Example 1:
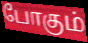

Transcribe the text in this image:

போகும்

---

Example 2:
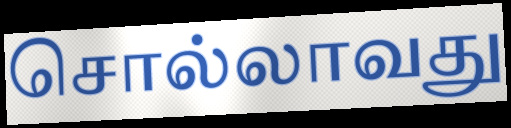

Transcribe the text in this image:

சொல்லாவது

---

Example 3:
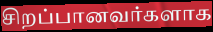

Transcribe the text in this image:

சிறப்பானவர்களாக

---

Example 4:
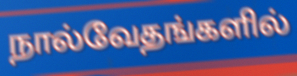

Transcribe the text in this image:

நால்வேதங்களில்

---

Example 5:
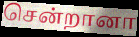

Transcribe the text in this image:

சென்றானா